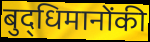
बुद्धिमानोंकी